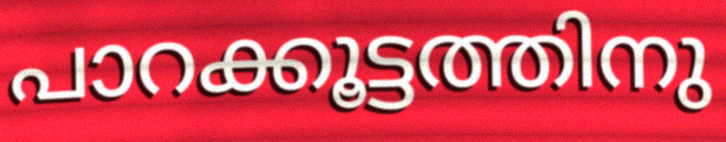
പാറക്കൂട്ടത്തിനു